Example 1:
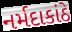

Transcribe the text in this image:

નર્મદાકાંઠે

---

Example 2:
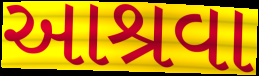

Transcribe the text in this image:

આશ્રવા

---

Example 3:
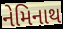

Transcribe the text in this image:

નેમિનાથ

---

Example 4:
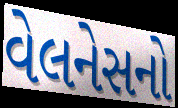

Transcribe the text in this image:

વેલનેસનો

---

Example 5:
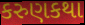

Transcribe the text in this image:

કરુણકથા